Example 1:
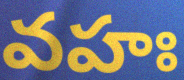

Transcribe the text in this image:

వహః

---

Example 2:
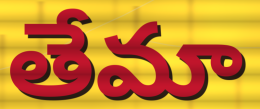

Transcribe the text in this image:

తేమా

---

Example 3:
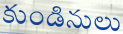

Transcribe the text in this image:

కుండినులు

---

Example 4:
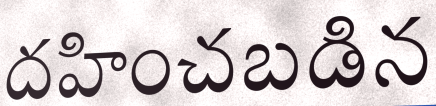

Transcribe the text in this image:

దహించబడిన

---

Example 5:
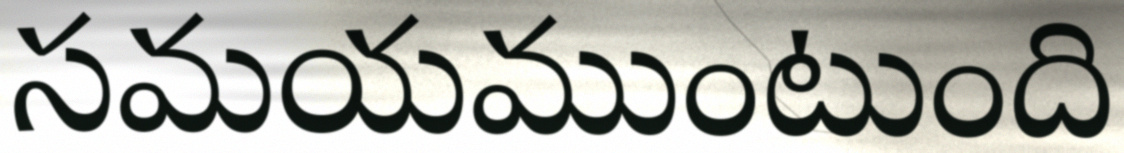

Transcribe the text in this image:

సమయముంటుంది